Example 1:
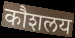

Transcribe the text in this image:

कौशलय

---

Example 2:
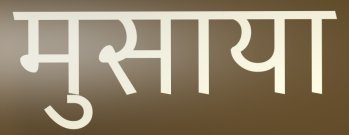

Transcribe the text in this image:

मुसाया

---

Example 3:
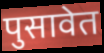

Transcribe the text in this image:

पुसावेत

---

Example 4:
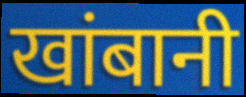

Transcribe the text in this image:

खांबानी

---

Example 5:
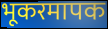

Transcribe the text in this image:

भूकरमापक